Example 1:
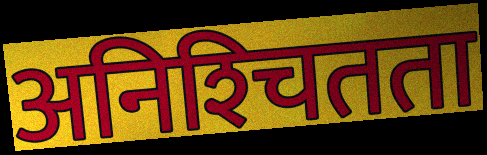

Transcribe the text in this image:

अनिश्‍चितता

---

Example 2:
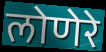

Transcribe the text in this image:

लोणेरे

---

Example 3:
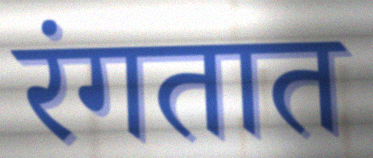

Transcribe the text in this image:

रंगतात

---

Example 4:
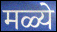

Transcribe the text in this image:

मळ्ये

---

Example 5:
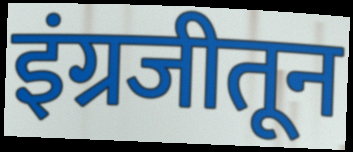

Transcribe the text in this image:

इंग्रजीतून